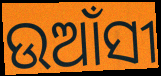
ଉଆଁସୀ